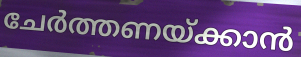
ചേർത്തണയ്ക്കാൻ